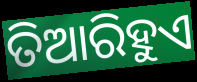
ତିଆରିହୁଏ